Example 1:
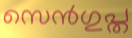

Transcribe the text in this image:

സെൻഗുപ്ത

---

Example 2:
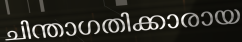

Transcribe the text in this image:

ചിന്താഗതിക്കാരായ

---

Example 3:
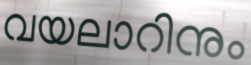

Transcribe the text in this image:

വയലാറിനും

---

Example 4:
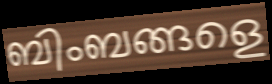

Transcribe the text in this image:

ബിംബങ്ങളെ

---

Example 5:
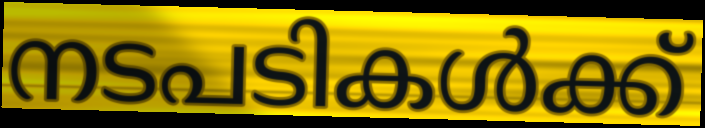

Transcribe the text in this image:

നടപടികൾക്ക്